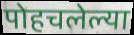
पोहचलेल्या